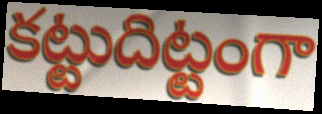
కట్టుదిట్టంగా